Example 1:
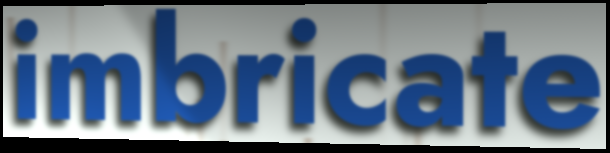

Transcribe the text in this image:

imbricate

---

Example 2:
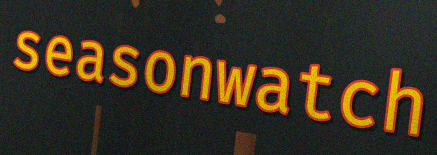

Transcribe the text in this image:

seasonwatch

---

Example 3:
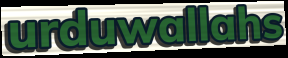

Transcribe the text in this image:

urduwallahs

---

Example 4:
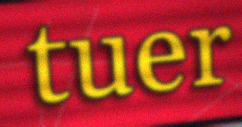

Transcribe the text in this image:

tuer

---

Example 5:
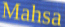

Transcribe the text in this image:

Mahsa